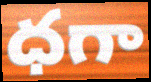
ధగా